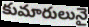
కుమారులునై